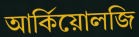
আর্কিয়োলজি